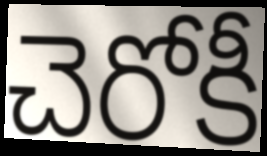
చెరోకీ